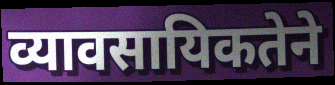
व्यावसायिकतेने